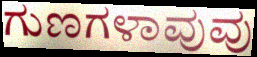
ಗುಣಗಳಾವುವು